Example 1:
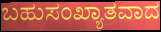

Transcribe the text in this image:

ಬಹುಸಂಖ್ಯಾತವಾದ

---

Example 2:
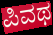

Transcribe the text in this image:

ಪಿವಥ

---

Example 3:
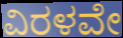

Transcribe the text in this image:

ವಿರಳವೇ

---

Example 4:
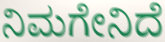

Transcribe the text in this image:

ನಿಮಗೇನಿದೆ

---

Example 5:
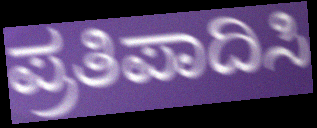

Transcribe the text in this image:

ಪ್ರತಿಪಾದಿಸಿ